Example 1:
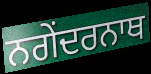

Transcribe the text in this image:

ਨਗੇਂਦਰਨਾਥ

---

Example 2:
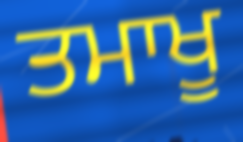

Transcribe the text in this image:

ਤਮਾਖੂ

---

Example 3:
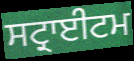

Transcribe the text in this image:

ਸਟ੍ਰਾਈਟਮ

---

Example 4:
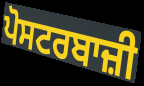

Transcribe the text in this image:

ਪੋਸਟਰਬਾਜ਼ੀ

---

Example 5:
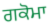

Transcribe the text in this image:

ਗਕੋਮਾ